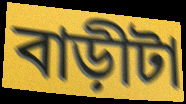
বাড়ীটা